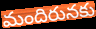
మందిరునకు